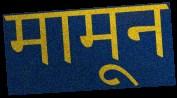
मामून